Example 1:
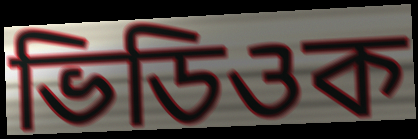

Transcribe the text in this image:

ভিডিওক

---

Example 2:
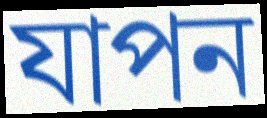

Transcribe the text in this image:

যাপন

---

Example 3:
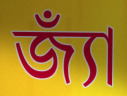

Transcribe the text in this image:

জ্যাঁ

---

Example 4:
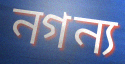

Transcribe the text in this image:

নগন্য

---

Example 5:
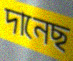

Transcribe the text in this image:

দানেছ